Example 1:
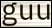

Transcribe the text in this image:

guu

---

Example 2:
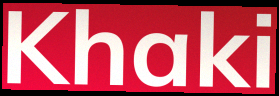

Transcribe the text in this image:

Khaki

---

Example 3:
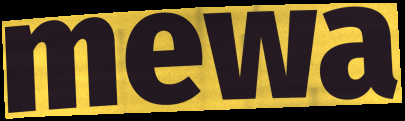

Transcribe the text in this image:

mewa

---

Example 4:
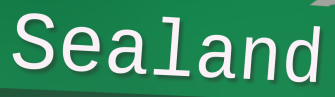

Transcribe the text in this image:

Sealand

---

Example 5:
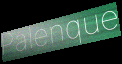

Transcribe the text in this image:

Palenque